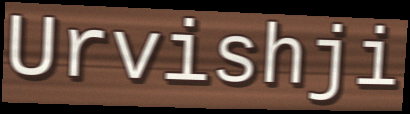
Urvishji